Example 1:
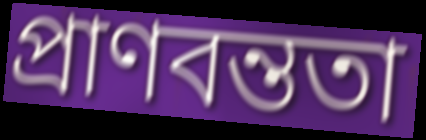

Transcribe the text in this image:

প্রাণবন্ততা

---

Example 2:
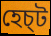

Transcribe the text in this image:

হেচ্ট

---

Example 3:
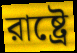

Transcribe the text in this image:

রাষ্ট্রে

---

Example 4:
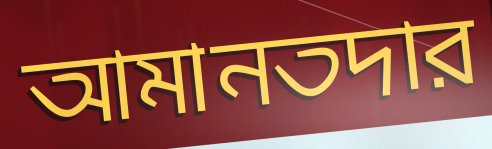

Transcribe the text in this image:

আমানতদার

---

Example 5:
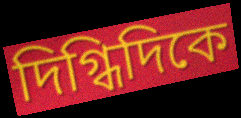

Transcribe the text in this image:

দিগ্ধিদিকে